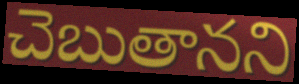
చెబుతానని